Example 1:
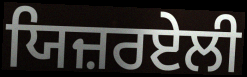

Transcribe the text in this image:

ਯਿਜ਼ਰਏਲੀ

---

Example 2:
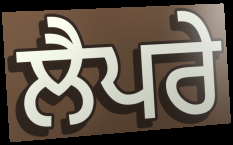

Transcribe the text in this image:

ਲੈਪਰੇ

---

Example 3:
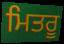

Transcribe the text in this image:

ਮਿਤਰੂ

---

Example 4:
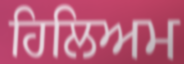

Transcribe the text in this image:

ਹਿਲਿਅਮ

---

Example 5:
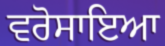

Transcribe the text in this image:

ਵਰੋਸਾਇਆ